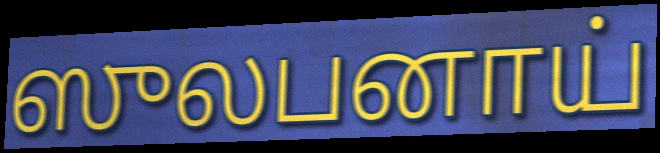
ஸுலபனாய்